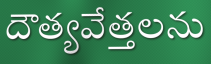
దౌత్యవేత్తలను